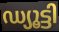
ഡ്യൂട്ടി